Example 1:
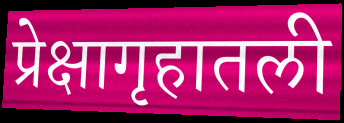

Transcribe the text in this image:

प्रेक्षागृहातली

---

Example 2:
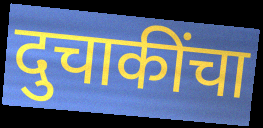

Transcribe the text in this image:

दुचाकींचा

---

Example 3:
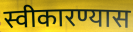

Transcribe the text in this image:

स्वीकारण्यास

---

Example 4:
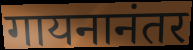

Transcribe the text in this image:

गायनानंतर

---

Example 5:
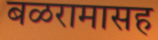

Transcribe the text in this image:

बळरामासह